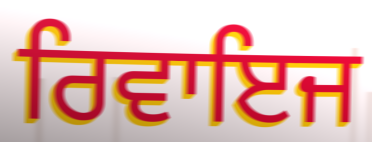
ਰਿਵਾਇਜ